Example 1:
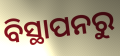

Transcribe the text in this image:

ବିସ୍ଥାପନରୁ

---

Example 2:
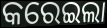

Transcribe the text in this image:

କରେଇଲା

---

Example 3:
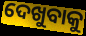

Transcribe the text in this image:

ଦେଖୁବାକୁ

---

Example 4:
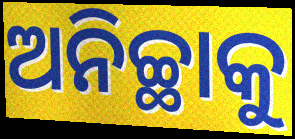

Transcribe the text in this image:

ଅନିଚ୍ଛାକୁ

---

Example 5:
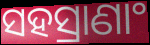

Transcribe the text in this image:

ସହସ୍ରାଣାଂ